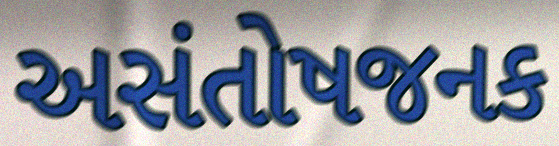
અસંતોષજનક